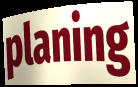
planing